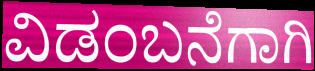
ವಿಡಂಬನೆಗಾಗಿ